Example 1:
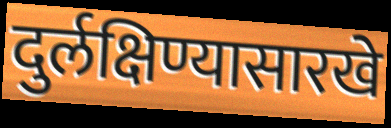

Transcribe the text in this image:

दुर्लक्षिण्यासारखे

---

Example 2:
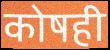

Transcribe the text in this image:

कोषही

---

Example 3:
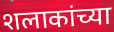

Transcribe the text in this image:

शलाकांच्या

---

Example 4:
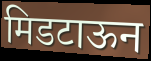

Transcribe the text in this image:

मिडटाऊन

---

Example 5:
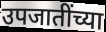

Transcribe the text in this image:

उपजातींच्या